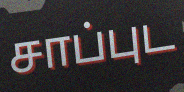
சாப்புட